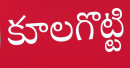
కూలగొట్టి